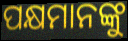
ପକ୍ଷମାନଙ୍କୁ